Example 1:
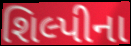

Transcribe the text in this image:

શિલ્પીના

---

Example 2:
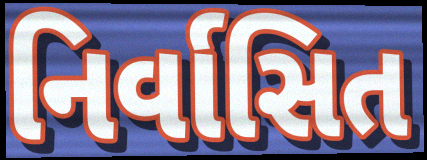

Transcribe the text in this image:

નિર્વાસિત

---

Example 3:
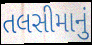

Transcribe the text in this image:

તલસીમાનું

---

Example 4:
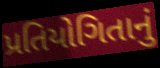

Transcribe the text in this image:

પ્રતિયોગિતાનું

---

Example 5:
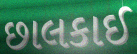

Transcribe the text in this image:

છાલકાઈ